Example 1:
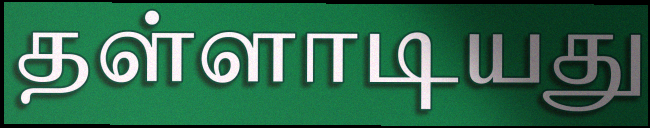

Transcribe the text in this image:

தள்ளாடியது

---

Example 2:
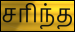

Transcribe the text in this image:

சரிந்த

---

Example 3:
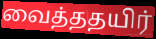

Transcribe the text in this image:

வைத்ததயிர்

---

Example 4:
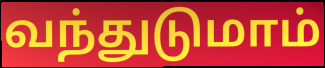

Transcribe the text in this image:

வந்துடுமாம்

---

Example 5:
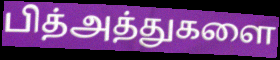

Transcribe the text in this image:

பித்அத்துகளை